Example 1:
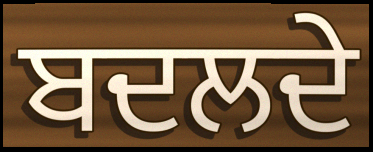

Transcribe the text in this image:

ਬਦਲਦੇ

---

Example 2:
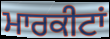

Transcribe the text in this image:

ਮਾਰਕੀਟਾਂ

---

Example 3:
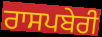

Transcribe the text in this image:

ਰਾਸਪਬੇਰੀ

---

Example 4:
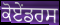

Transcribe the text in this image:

ਕੋਏਂਡਰਸ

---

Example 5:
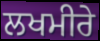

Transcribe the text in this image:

ਲਖਮੀਰੇ